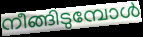
നീങ്ങിടുമ്പോൾ